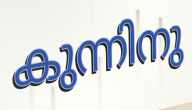
കുന്നിനു